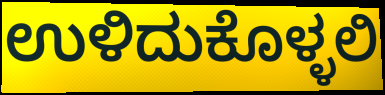
ಉಳಿದುಕೊಳ್ಳಲಿ